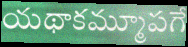
యథాకమ్మూపగే